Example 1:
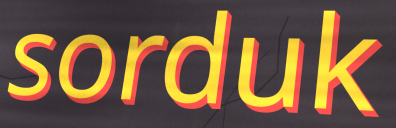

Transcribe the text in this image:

sorduk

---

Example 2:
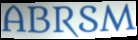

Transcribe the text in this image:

ABRSM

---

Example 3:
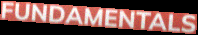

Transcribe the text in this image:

FUNDAMENTALS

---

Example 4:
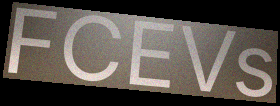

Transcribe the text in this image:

FCEVs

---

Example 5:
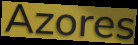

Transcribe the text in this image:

Azores